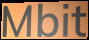
Mbit